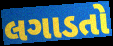
લગાડતો